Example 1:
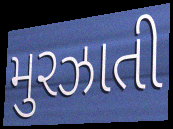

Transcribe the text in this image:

મુરઝાતી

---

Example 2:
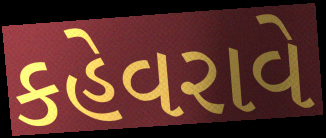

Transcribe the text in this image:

કહેવરાવે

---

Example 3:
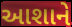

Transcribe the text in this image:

આશાને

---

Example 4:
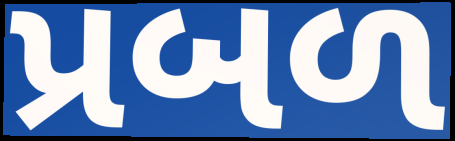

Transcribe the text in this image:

પ્રબળ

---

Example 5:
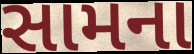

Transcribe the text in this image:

સામના